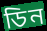
ডিন